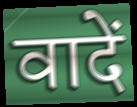
वादें